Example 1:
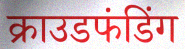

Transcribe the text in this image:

क्राउडफंडिंग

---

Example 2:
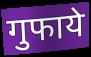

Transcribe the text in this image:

गुफाये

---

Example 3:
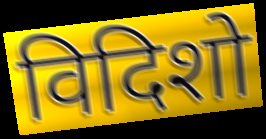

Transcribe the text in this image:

विदिशो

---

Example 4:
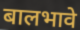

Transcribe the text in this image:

बालभावे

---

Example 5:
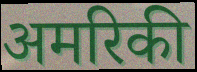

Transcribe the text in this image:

अमरिकी